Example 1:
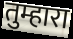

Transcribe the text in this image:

तुम्हारा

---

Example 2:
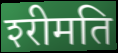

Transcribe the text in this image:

श्रीमति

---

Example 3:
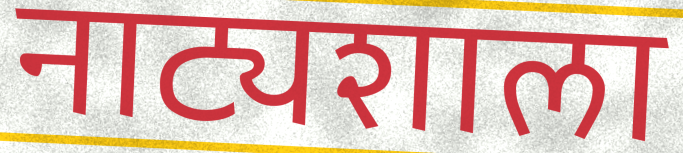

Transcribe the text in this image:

नाट्यशाला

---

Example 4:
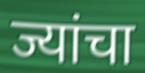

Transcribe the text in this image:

ज्यांचा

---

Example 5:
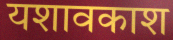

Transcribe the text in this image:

यशावकाश